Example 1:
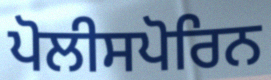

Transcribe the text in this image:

ਪੋਲੀਸਪੋਰਿਨ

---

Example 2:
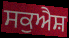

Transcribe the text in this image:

ਸਕੁਐਸ਼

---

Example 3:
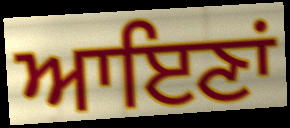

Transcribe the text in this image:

ਆਇਣਾਂ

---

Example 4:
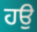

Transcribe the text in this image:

ਹਉ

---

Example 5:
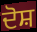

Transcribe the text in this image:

ਦੋਸ਼